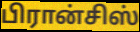
பிரான்சிஸ்